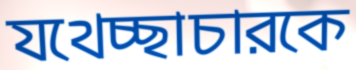
যথেচ্ছাচারকে